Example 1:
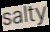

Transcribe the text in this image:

salty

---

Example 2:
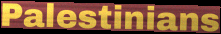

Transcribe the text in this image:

Palestinians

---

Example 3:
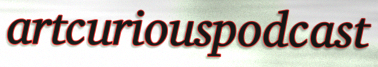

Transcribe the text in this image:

artcuriouspodcast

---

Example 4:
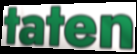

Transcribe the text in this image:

taten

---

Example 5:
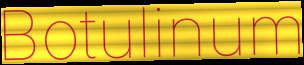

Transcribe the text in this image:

Botulinum